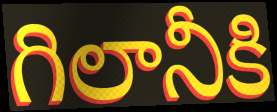
గిలానీకి